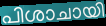
പിശാചായി